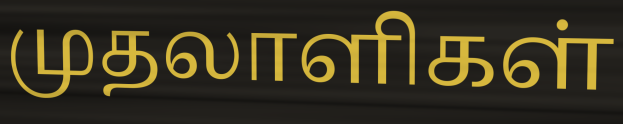
முதலாளிகள்